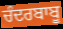
ਚੰਦਰਬਾਬੂ